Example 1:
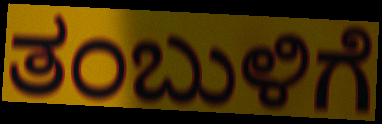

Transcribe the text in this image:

ತಂಬುಳಿಗೆ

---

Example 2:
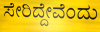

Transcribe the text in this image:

ಸೇರಿದ್ದೇವೆಂದು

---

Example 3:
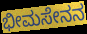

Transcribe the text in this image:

ಭೀಮಸೇನನ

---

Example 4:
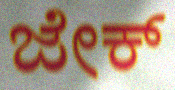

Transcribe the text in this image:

ಜೇಕ್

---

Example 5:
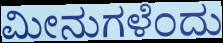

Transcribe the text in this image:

ಮೀನುಗಳೆಂದು